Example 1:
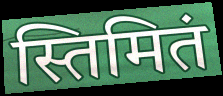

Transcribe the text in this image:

स्तिमितं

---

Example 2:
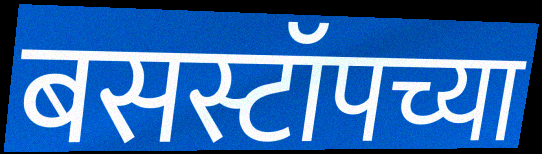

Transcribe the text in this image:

बसस्टॉपच्या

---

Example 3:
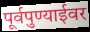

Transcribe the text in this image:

पूर्वपुण्याईवर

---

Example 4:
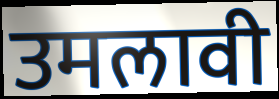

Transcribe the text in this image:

उमलावी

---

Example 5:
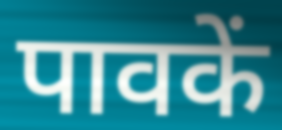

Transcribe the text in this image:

पावकें